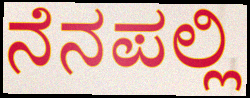
ನೆನಪಲ್ಲಿ